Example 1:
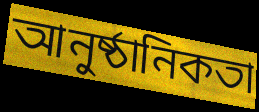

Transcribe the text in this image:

আনুষ্ঠানিকতা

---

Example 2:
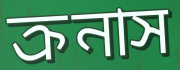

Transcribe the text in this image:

ক্রনাস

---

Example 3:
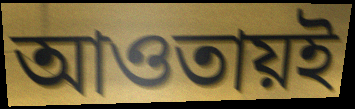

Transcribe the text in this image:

আওতায়ই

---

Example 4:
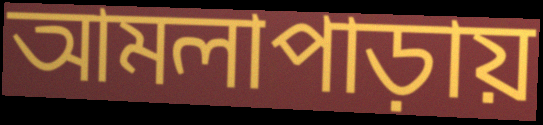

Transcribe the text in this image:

আমলাপাড়ায়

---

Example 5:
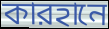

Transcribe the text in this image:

কারহানে